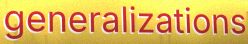
generalizations